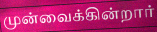
முன்வைக்கின்றார்